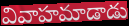
వివాహమాడాడు